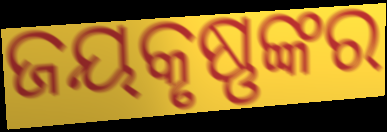
ଜୟକୃଷ୍ଣଙ୍କର